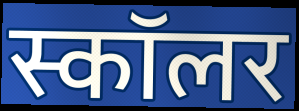
स्कॉलर